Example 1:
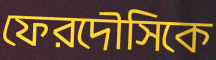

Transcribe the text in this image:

ফেরদৌসিকে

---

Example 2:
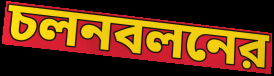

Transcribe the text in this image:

চলনবলনের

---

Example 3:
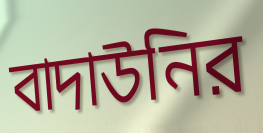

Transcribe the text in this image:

বাদাউনির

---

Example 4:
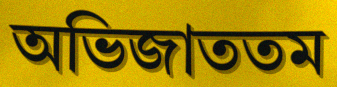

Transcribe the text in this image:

অভিজাততম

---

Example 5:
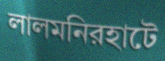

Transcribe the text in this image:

লালমনিরহাটে